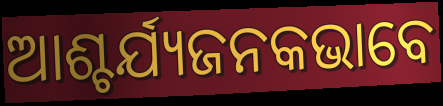
ଆଶ୍ଚର୍ଯ୍ୟଜନକଭାବେ